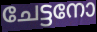
ചേട്ടനോ